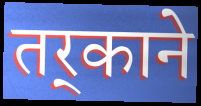
तर्काने